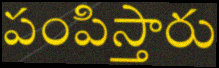
పంపిస్తారు